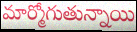
మార్మోగుతున్నాయి